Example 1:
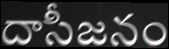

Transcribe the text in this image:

దాసీజనం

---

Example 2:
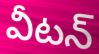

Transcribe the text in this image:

వీటన్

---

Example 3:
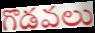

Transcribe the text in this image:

గొడవలు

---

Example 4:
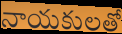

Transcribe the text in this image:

నాయకులతో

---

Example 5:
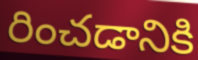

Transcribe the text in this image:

రించడానికి